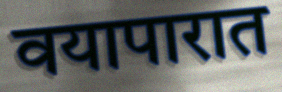
वयापारात